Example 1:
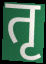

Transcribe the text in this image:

तृ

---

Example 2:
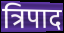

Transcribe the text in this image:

त्रिपाद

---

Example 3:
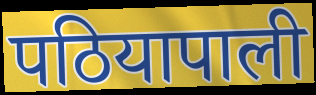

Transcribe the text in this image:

पठियापाली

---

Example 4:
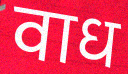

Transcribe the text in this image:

वाध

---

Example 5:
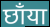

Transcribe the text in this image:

छाँया